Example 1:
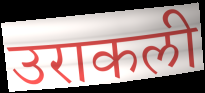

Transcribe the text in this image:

उराकली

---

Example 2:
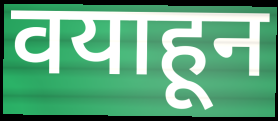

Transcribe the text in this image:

वयाहून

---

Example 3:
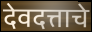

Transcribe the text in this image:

देवदत्ताचे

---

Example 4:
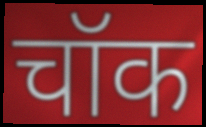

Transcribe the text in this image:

चॉक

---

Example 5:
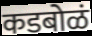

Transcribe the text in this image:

कडबोळं